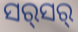
ସର୍‍ସର୍